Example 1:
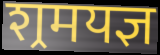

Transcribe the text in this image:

श्रमयज्ञ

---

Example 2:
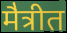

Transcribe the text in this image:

मैत्रीत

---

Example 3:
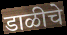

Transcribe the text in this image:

डाळीचे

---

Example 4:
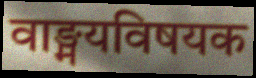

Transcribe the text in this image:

वाङ्मयविषयक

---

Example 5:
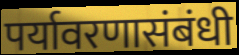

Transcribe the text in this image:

पर्यावरणासंबंधी